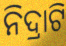
ନିଦ୍ରାଟି